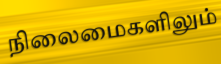
நிலைமைகளிலும்